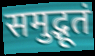
समुद्भूतं